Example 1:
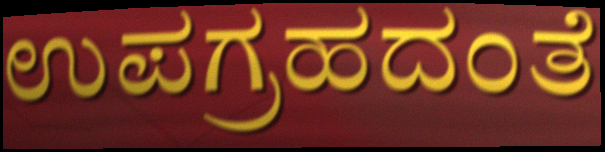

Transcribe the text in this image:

ಉಪಗ್ರಹದಂತೆ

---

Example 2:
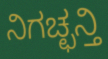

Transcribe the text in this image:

ನಿಗಚ್ಛನ್ತಿ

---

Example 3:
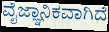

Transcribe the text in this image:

ವೈಜ್ಞಾನಿಕವಾಗಿದೆ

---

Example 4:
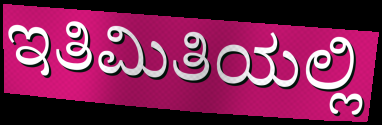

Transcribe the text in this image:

ಇತಿಮಿತಿಯಲ್ಲಿ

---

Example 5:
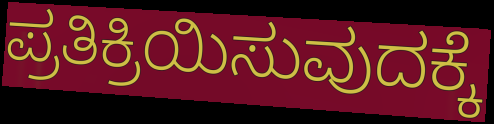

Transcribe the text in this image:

ಪ್ರತಿಕ್ರಿಯಿಸುವುದಕ್ಕೆ